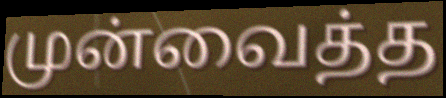
முன்வைத்த